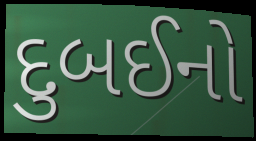
દુબઈનો